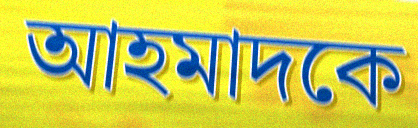
আহমাদকে